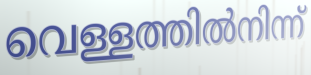
വെള്ളത്തിൽനിന്ന്